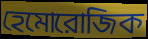
হেমোরোজিক